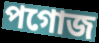
পগোজ